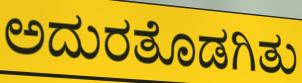
ಅದುರತೊಡಗಿತು